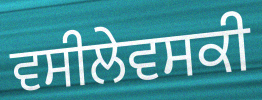
ਵਸੀਲੇਵਸਕੀ